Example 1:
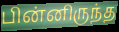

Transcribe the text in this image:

பின்னிருந்த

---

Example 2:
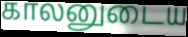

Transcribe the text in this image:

காலனுடைய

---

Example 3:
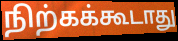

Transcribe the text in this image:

நிற்கக்கூடாது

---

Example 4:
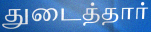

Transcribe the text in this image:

துடைத்தார்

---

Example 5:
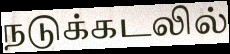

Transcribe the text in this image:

நடுக்கடலில்